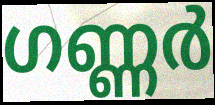
ഗണ്ണർ